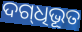
ଦଗ୍‌ଧିଭୂତ